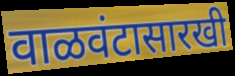
वाळवंटासारखी